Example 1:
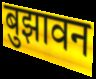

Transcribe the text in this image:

बुझावन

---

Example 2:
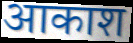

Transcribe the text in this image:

आकाश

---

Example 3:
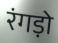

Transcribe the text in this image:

रंगड़ो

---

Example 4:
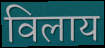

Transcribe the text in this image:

विलाय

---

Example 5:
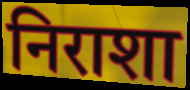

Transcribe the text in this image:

निराशा